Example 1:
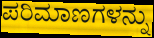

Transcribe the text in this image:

ಪರಿಮಾಣಗಳನ್ನು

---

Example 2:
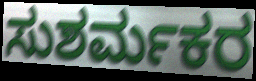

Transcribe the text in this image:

ಸುಶರ್ಮಕರ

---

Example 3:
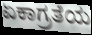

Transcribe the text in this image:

ಏಕಾಗ್ರತೆಯ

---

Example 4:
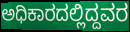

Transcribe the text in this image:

ಅಧಿಕಾರದಲ್ಲಿದ್ದವರ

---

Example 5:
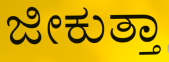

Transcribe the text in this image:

ಜೀಕುತ್ತಾ